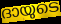
ദായുടെ